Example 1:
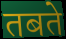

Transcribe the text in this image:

तबते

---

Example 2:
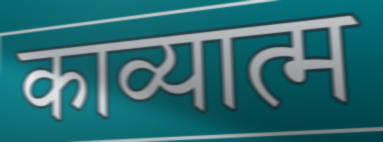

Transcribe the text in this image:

काव्यात्म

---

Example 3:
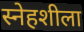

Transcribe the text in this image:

स्नेहशीला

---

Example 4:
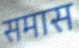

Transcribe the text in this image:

समास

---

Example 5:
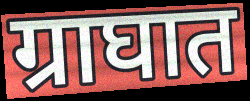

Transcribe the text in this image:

ग्राघात